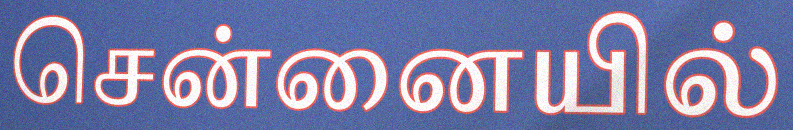
சென்னையில்